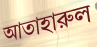
আতাহারুল